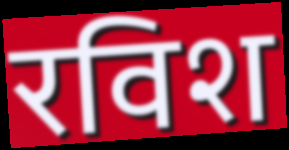
रविश